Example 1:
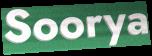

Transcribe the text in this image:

Soorya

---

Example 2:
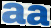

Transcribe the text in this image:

aa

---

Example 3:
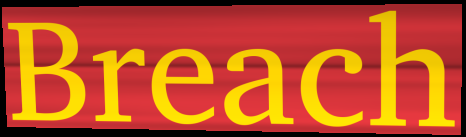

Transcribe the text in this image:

Breach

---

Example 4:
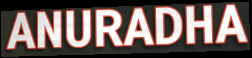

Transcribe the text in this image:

ANURADHA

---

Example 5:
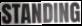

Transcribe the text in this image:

STANDING